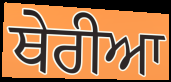
ਥੇਰੀਆ